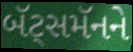
બૅટ્સમૅનને